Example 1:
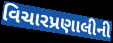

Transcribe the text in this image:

વિચારપ્રણાલીની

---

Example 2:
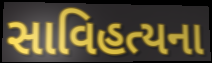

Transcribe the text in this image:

સાવિહત્યના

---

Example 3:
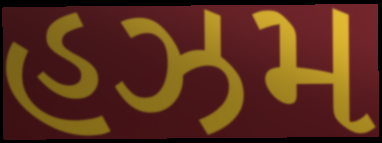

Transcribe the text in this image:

હઝમ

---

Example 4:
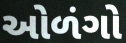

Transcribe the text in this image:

ઓળંગો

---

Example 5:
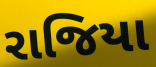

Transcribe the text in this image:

રાજિયા